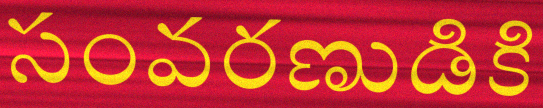
సంవరణుడికి